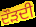
ਦੌੜਦੀ